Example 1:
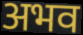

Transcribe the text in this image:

अभव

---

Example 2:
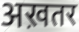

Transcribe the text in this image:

अख़तर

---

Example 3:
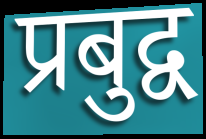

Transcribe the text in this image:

प्रबुद्व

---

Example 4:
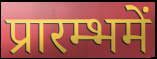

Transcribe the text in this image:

प्रारम्भमें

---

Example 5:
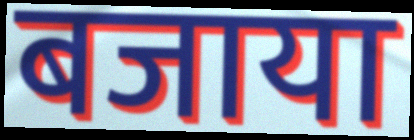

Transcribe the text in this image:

बजाया